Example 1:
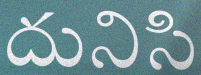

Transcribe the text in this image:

దునిసి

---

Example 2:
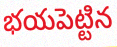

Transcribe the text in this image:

భయపెట్టిన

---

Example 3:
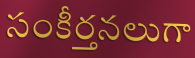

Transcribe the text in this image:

సంకీర్తనలుగా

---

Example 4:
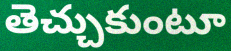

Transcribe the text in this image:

తెచ్చుకుంటూ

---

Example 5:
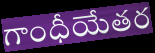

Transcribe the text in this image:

గాంధీయేతర